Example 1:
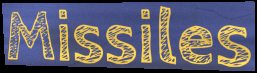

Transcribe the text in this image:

Missiles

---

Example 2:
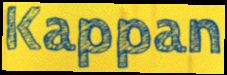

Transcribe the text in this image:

Kappan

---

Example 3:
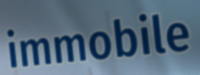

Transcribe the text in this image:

immobile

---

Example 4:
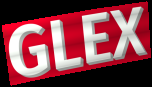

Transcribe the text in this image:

GLEX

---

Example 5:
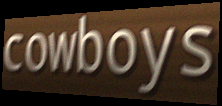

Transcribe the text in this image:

cowboys